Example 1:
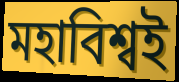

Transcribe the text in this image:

মহাবিশ্বই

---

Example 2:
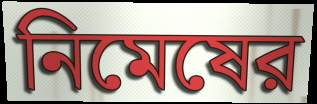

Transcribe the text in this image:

নিমেষের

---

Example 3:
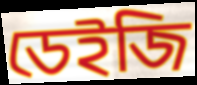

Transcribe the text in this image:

ডেইজি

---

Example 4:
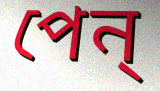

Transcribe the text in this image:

পেন্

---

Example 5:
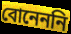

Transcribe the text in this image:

বোনেননি